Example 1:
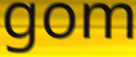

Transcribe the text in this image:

gom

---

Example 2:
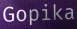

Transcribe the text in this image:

Gopika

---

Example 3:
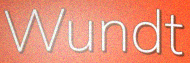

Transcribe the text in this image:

Wundt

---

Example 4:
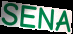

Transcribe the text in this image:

SENA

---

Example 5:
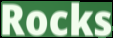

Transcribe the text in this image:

Rocks